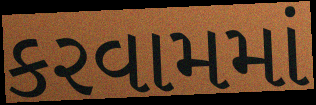
કરવામમાં